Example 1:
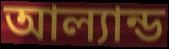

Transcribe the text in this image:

আল্যান্ড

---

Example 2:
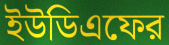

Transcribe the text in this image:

ইউডিএফের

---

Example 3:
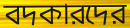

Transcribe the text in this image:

বদকারদের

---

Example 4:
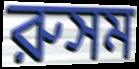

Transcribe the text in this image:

রুসম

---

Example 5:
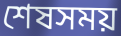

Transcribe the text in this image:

শেষসময়